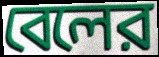
বেলের